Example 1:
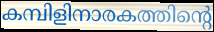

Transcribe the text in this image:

കമ്പിളിനാരകത്തിന്റെ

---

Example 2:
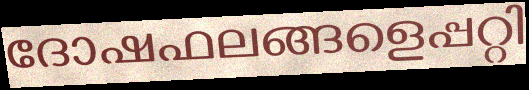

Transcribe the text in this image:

ദോഷഫലങ്ങളെപ്പറ്റി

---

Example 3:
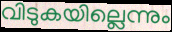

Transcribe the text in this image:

വിടുകയില്ലെന്നും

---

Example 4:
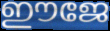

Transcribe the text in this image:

ഈജേ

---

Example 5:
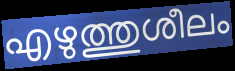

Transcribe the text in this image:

എഴുത്തുശീലം